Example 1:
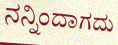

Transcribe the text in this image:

ನನ್ನಿಂದಾಗದು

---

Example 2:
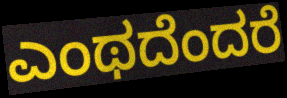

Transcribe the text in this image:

ಎಂಥದೆಂದರೆ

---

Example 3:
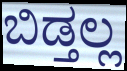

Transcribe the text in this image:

ಬಿಡ್ತಲ್ಲ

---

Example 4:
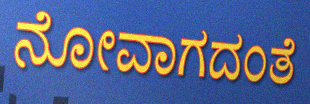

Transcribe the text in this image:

ನೋವಾಗದಂತೆ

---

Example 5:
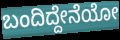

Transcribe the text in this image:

ಬಂದಿದ್ದೇನೆಯೋ